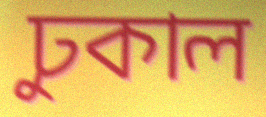
ঢুকাল